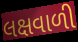
લક્ષવાળી